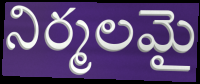
నిర్మలమై